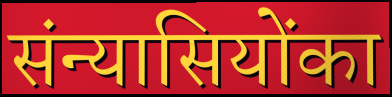
संन्यासियोंका